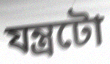
যন্ত্ৰটো